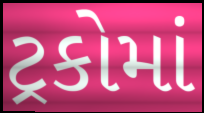
ટ્રકોમાં